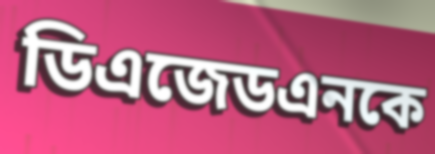
ডিএজেডএনকে